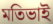
মতিভাই